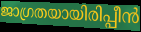
ജാഗ്രതയായിരിപ്പീൻ